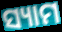
ସ୍ୟାମ